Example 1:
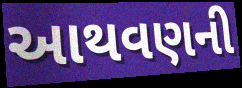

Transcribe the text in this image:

આથવણની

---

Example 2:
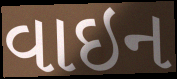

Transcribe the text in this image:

વાઇન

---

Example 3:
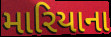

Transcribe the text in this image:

મારિયાના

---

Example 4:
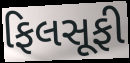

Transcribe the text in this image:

ફિલસૂફી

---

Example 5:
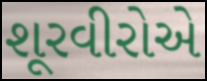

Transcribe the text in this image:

શૂરવીરોએ